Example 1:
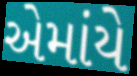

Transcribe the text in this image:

એમાંયે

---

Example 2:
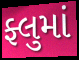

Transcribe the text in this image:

ફ્લુમાં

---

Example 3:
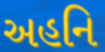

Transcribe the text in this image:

અહનિ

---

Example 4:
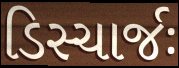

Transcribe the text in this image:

ડિસ્ચાર્જઃ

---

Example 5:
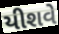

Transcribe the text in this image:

યીશવે